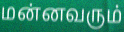
மன்னவரும்